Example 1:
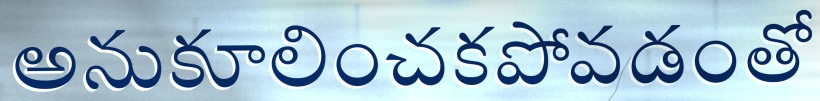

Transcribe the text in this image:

అనుకూలించకపోవడంతో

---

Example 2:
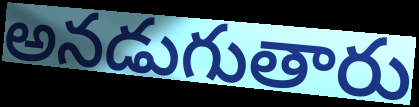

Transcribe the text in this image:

అనడుగుతారు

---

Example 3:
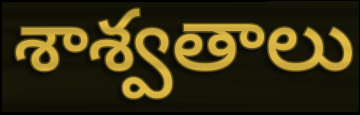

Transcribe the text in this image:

శాశ్వతాలు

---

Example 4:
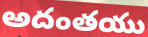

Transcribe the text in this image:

అదంతయు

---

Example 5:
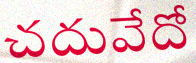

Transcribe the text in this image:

చదువేదో